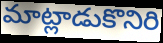
మాట్లాడుకొనిరి